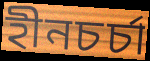
হীনচর্চা